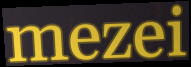
mezei